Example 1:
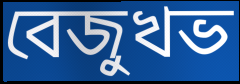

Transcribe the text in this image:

বেজুখভ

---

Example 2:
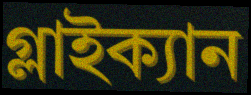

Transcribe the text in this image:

গ্লাইক্যান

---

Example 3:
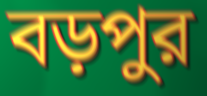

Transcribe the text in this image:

বড়পুর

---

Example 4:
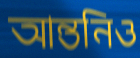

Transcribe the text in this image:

আন্তনিও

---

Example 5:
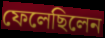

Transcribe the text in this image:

ফেলেছিলেন